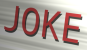
JOKE